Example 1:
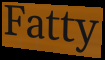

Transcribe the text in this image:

Fatty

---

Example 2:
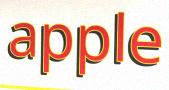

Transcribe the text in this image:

apple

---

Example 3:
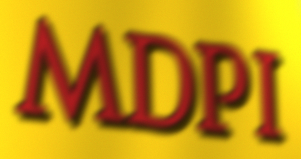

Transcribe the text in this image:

MDPI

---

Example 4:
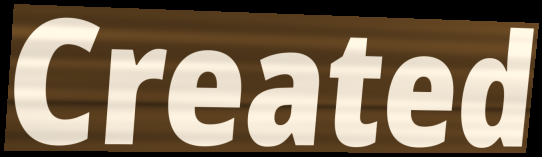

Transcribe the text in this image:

Created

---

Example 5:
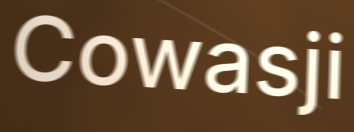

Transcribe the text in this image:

Cowasji